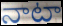
నాటా